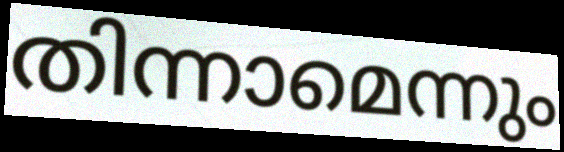
തിന്നാമെന്നും